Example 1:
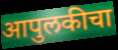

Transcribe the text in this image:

आपुलकीचा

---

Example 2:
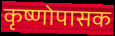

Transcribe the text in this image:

कृष्णोपासक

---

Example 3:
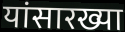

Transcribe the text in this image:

यांसारख्‍या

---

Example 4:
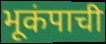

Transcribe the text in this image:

भूकंपाची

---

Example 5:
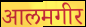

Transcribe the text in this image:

आलमगीर